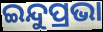
ଇନ୍ଦୁପ୍ରଭା